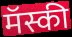
मॅस्की